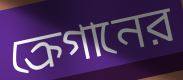
ক্রেগানের